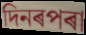
দিনৰপৰা